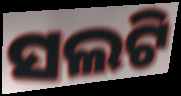
ସଲଟି